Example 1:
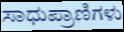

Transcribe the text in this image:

ಸಾಧುಪ್ರಾಣಿಗಳು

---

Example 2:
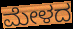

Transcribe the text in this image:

ಮೇಳದ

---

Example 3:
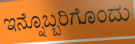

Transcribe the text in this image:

ಇನ್ನೊಬ್ಬರಿಗೊಂದು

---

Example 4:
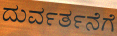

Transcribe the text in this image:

ದುರ್ವರ್ತನೆಗೆ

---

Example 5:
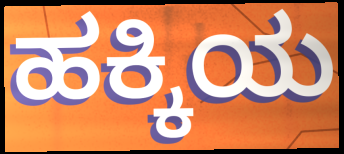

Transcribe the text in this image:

ಹಕ್ಕಿಯ